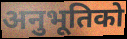
अनुभूतिको